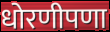
धोरणीपणा